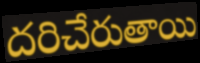
దరిచేరుతాయి